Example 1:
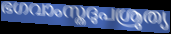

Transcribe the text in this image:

ഭഗവാംസ്തദുപശ്രുത്യ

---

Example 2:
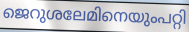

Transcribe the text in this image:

ജെറുശലേമിനെയുംപറ്റി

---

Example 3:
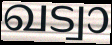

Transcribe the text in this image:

ഖട്വാ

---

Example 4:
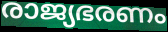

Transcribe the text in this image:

രാജ്യഭരണം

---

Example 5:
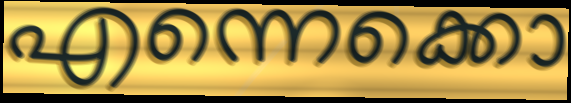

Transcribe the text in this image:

എന്നെക്കൊ